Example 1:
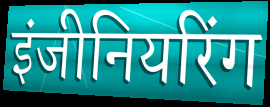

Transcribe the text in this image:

इंजीनियरिंग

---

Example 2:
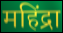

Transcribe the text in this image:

महिंद्रा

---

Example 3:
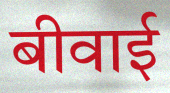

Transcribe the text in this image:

बीवाई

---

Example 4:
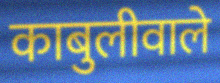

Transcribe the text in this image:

काबुलीवाले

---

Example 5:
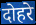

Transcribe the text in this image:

दोहरे